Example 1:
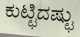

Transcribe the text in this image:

ಕುಟ್ಟಿದಷ್ಟು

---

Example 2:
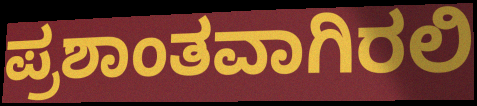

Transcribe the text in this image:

ಪ್ರಶಾಂತವಾಗಿರಲಿ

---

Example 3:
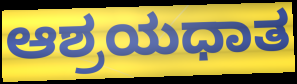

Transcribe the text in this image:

ಆಶ್ರಯಧಾತ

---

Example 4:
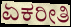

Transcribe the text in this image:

ಏಕರೀತಿ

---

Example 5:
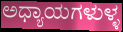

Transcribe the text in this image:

ಅಧ್ಯಾಯಗಳುಳ್ಳ